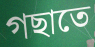
গছাতে